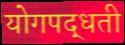
योगपद्धती